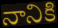
నానికి